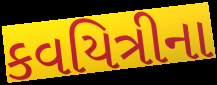
કવયિત્રીના